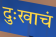
दुःखाचं